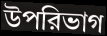
উপরিভাগ